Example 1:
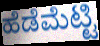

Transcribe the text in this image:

ಹೆಡೆಮೆಟ್ಟಿ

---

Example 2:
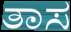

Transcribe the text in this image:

ತಾಸ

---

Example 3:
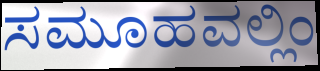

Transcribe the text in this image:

ಸಮೂಹವಲ್ಲಿಂ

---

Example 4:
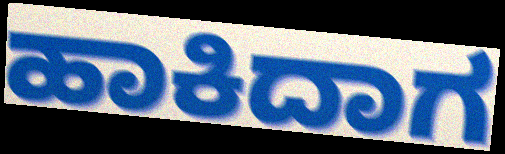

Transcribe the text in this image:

ಹಾಕಿದಾಗ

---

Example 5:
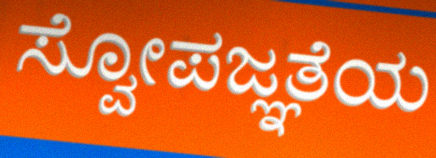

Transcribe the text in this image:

ಸ್ವೋಪಜ್ಞತೆಯ